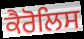
ਕੈਰੋਲਿਸ